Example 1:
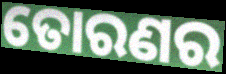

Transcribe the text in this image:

ତୋରଣର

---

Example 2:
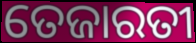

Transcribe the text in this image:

ତେଜାରତୀ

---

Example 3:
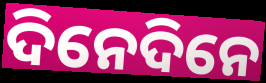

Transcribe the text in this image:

ଦିନେଦିନେ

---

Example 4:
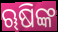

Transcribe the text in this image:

ୠଷିଙ୍କ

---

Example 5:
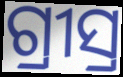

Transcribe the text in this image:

ଗ୍ରୀସ୍ର